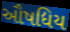
ઔષદ્યિય